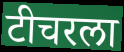
टीचरला